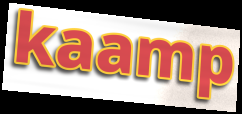
kaamp